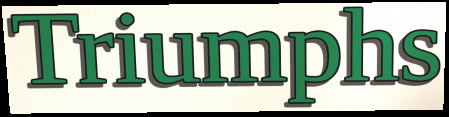
Triumphs